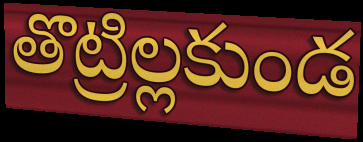
తొట్రిల్లకుండ